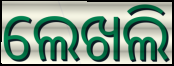
ଲେଖଲି